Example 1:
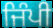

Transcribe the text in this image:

ਜਿੰਪੀ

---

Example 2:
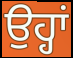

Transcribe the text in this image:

ਉਹ੍ਹਾਂ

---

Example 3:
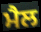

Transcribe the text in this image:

ਮੈਲ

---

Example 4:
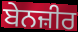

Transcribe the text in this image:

ਬੇਨਜ਼ੀਰ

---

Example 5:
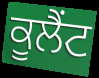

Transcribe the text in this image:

ਕੂਲੈਂਟ